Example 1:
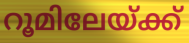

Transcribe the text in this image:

റൂമിലേയ്ക്ക്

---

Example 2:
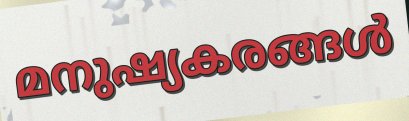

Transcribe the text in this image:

മനുഷ്യകരങ്ങൾ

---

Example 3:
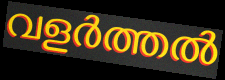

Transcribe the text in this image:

വളർത്തൽ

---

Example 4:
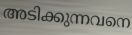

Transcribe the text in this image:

അടിക്കുന്നവനെ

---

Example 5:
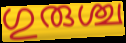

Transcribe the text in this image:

ഗുരുശ്ച